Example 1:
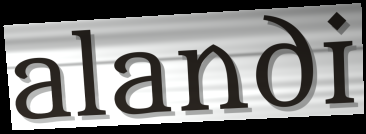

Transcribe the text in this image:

alandi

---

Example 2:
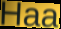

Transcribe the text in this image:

Haa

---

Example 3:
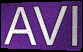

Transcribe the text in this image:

AVI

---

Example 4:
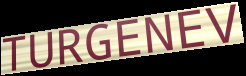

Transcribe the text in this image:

TURGENEV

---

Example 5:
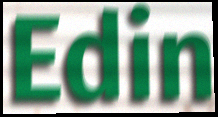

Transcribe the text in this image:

Edin